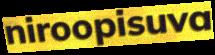
niroopisuva